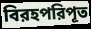
বিরহপরিপূত